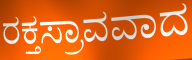
ರಕ್ತಸ್ರಾವವಾದ